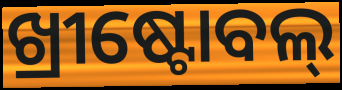
ଖ୍ରୀଷ୍ଟୋବଲ୍